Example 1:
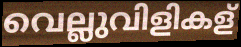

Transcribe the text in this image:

വെല്ലുവിളികള്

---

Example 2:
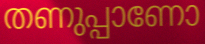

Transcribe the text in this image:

തണുപ്പാണോ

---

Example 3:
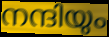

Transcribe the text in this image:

നന്ദിയും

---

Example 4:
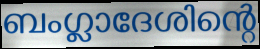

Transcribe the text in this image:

ബംഗ്ലാദേശിന്റെ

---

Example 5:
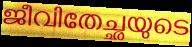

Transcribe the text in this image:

ജീവിതേച്ഛയുടെ